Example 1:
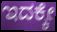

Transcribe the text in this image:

ಇದಕ್ಕೇ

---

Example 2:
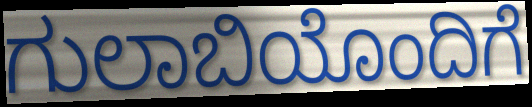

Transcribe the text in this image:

ಗುಲಾಬಿಯೊಂದಿಗೆ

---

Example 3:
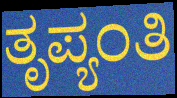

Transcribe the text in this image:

ತೃಪ್ಯಂತಿ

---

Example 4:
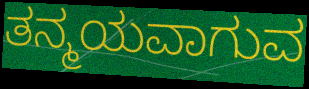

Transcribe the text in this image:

ತನ್ಮಯವಾಗುವ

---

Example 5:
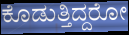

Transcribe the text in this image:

ಕೊಡುತ್ತಿದ್ದರೋ